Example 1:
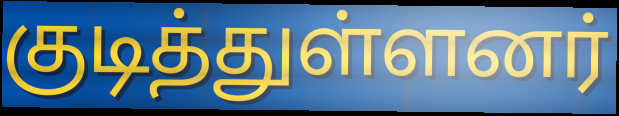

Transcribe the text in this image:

குடித்துள்ளனர்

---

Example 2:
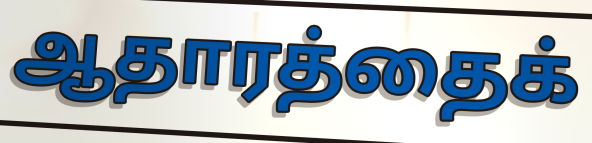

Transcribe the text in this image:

ஆதாரத்தைக்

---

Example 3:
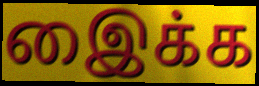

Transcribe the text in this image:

இைக்க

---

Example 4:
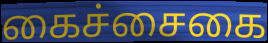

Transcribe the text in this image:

கைச்சைகை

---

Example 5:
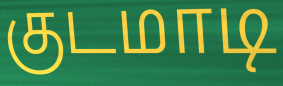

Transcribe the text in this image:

குடமாடி